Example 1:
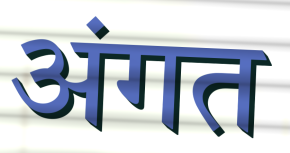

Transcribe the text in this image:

अंगत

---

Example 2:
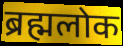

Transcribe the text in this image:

ब्रह्मलोक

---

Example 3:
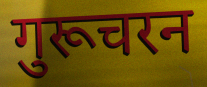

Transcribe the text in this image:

गुरूचरन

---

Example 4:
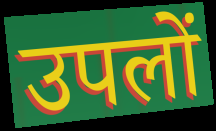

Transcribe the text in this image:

उपलों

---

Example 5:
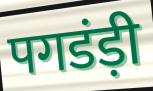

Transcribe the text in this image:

पगडंड़ी